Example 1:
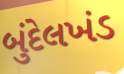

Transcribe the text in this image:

બુંદેલખંડ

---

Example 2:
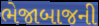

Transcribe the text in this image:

ભેજાબાજની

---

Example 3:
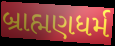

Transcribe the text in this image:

બ્રાહ્મણધર્મ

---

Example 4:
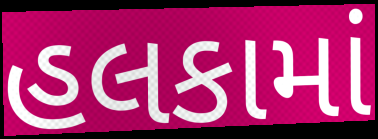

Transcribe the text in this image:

હલકામાં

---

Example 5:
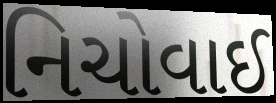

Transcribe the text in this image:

નિચોવાઈ